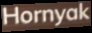
Hornyak